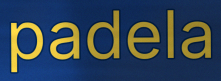
padela